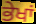
ਭੇਖਾਂ